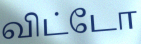
விட்டோ